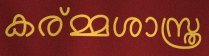
കര്മ്മശാസ്ത്ര